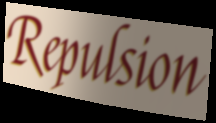
Repulsion